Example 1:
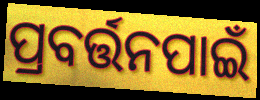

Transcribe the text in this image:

ପ୍ରବର୍ତ୍ତନପାଇଁ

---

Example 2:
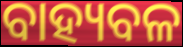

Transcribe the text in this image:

ବାହ୍ୟବଳ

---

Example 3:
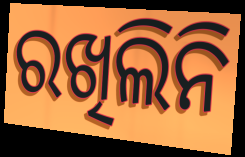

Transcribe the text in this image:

ରଖିଲିନି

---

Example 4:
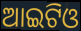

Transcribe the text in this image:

ଆଇଟିଓ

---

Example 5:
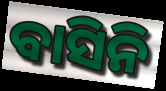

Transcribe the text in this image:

ବାସିନି